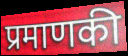
प्रमाणकी